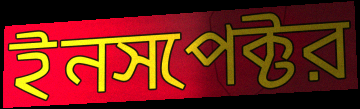
ইনসপেক্টর